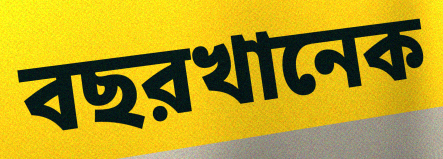
বছরখানেক